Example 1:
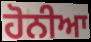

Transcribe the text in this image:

ਹੋਨੀਆ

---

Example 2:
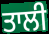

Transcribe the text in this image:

ਤਾਲੀ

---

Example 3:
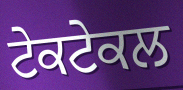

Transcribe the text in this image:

ਟੇਕਟੇਕਲ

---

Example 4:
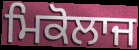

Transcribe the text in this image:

ਮਿਕੋਲਾਜ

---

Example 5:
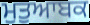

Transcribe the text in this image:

ਮੁਤੁਆਬਕ